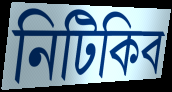
নিটিকিব